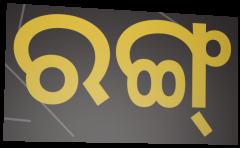
ରଙ୍ଗ୍